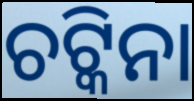
ଚଟ୍କିନା